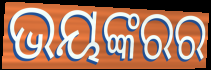
ଭୟଙ୍କରର